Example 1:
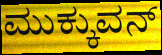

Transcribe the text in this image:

ಮುಕ್ಕುವನ್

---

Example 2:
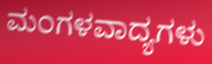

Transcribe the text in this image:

ಮಂಗಳವಾದ್ಯಗಳು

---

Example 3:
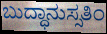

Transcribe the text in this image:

ಬುದ್ಧಾನುಸ್ಸತಿಂ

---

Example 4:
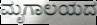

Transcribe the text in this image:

ಮೃಗಾಲಯದ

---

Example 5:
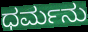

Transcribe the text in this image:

ಧರ್ಮನು